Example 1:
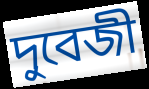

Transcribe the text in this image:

দুবেজী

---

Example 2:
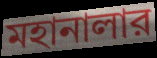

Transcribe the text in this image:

মহানালার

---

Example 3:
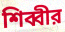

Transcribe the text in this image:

শিব্বীর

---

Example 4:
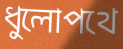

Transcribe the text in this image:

ধুলোপথে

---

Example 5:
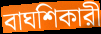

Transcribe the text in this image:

বাঘশিকারী